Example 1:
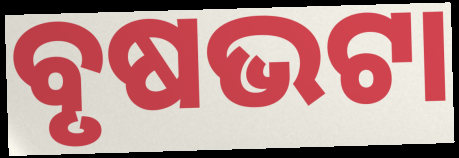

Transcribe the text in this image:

ବୃଷଭଟା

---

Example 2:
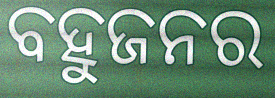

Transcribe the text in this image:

ବହୁଜନର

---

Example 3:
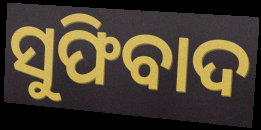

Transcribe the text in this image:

ସୁଫିବାଦ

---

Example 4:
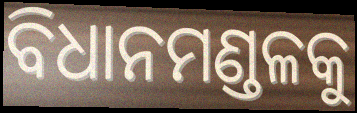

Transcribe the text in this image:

ବିଧାନମଣ୍ଡଳକୁ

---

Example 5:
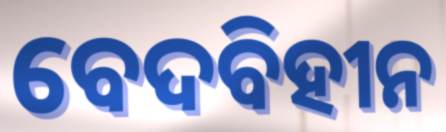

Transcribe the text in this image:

ବେଦବିହୀନ